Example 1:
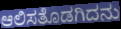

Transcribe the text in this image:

ಆಲಿಸತೊಡಗಿದನು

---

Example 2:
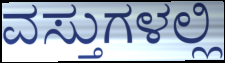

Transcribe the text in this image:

ವಸ್ತುಗಳಲ್ಲಿ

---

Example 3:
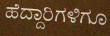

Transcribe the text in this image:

ಹೆದ್ದಾರಿಗಳಿಗೂ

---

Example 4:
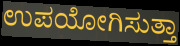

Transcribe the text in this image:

ಉಪಯೋಗಿಸುತ್ತಾ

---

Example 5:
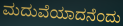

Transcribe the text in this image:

ಮದುವೆಯಾದನೆಂದು